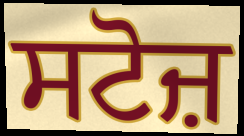
ਸਟੋਜ਼